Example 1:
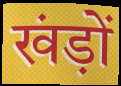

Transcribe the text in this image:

खंड़ों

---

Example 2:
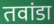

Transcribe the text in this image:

तवांडा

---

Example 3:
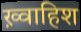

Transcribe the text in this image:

ख़्वाहिश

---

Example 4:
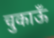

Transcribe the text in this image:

चुकाऊँ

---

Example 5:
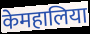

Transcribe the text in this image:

केमहालिया